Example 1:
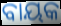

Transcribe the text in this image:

ବାୟକ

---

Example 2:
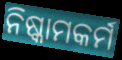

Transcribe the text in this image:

ନିଷ୍କାମକର୍ମ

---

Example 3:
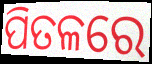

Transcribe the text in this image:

ପିତଳରେ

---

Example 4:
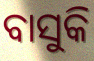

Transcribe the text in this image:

ବାସୁକି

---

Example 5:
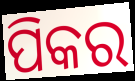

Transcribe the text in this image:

ପିକର